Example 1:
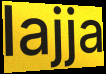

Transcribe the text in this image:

lajja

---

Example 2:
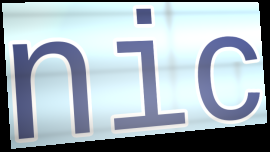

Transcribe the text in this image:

nic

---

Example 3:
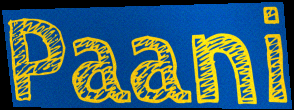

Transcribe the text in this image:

Paani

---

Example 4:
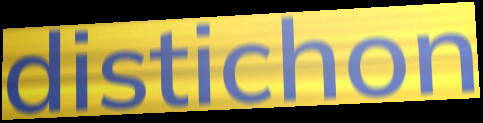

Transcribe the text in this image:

distichon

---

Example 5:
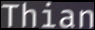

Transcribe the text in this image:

Thian